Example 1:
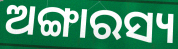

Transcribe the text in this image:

ଅଙ୍ଗାରସ୍ୟ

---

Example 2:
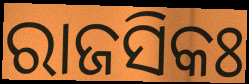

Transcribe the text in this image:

ରାଜସିକଃ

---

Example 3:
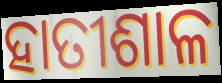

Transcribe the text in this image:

ହାତୀଶାଳ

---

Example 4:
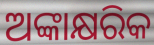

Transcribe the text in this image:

ଅଙ୍କାକ୍ଷରିକ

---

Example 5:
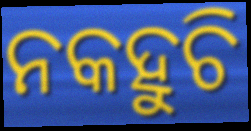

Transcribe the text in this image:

ନକହୁଚି